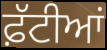
ਫ਼ੱਟੀਆਂ